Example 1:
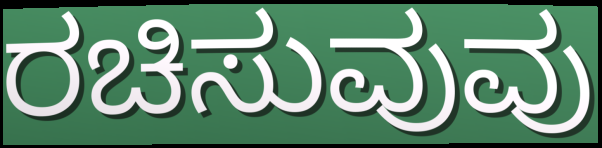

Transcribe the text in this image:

ರಚಿಸುವುವು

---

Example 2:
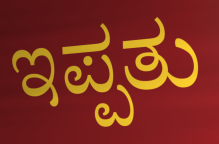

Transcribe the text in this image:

ಇಪ್ಪತು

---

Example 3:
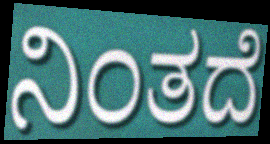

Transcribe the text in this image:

ನಿಂತದೆ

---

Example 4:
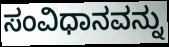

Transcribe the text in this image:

ಸಂವಿಧಾನವನ್ನು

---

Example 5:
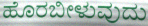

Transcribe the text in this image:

ಹೊರಬೀಳುವುದು